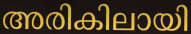
അരികിലായി